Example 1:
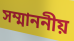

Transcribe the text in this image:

সম্মাননীয়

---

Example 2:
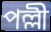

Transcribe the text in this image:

পল্লী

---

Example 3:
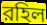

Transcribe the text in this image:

রহিল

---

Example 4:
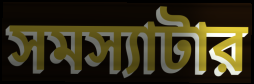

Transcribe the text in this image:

সমস্যাটার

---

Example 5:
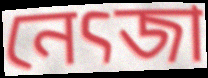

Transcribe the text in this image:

নেৎজা